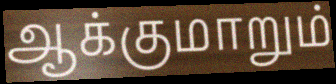
ஆக்குமாறும்